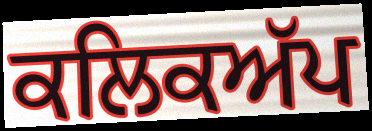
ਕਲਿਕਅੱਪ